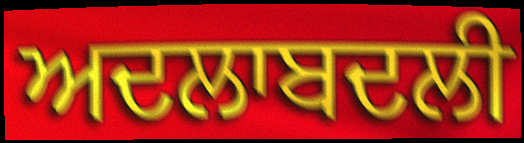
ਅਦਲਾਬਦਲੀ